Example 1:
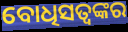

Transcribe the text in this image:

ବୋଧିସତ୍ୱଙ୍କର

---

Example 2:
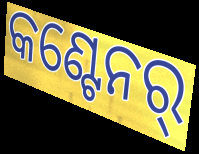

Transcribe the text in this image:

କଣ୍ଟେନର୍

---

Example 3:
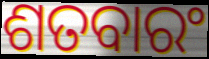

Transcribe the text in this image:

ଶତବାରଂ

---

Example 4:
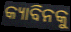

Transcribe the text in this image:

କ୍ୟାବିନକୁ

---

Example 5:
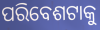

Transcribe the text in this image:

ପରିବେଶଟାକୁ